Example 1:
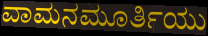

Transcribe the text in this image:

ವಾಮನಮೂರ್ತಿಯು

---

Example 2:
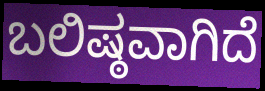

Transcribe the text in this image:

ಬಲಿಷ್ಠವಾಗಿದೆ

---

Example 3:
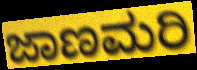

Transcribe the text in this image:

ಜಾಣಮರಿ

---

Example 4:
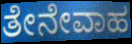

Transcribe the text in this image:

ತೇನೇವಾಹ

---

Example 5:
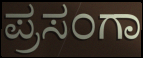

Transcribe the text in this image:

ಪ್ರಸಂಗಾ